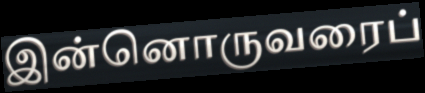
இன்னொருவரைப்